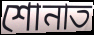
শোনাত